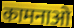
कामनाओ